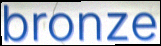
bronze